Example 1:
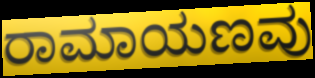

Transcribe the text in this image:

ರಾಮಾಯಣವು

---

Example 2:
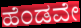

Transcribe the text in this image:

ಹೆಂಡವೇ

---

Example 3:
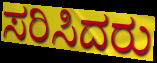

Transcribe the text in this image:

ಸರಿಸಿದರು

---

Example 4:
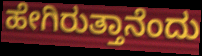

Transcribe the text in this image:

ಹೇಗಿರುತ್ತಾನೆಂದು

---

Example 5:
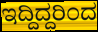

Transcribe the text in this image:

ಇದ್ದಿದ್ದರಿಂದ